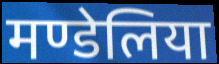
मण्डेलिया